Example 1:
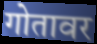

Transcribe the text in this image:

गोतावर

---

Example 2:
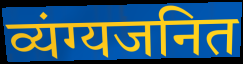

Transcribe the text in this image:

व्यंग्यजनित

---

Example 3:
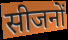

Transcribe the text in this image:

सीजनों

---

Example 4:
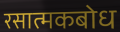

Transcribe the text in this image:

रसात्मकबोध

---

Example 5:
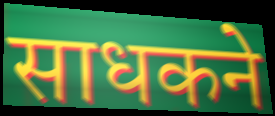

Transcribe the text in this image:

साधकने